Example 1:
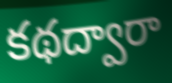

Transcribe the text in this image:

కథద్వారా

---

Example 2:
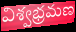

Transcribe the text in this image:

విశ్వభ్రమణ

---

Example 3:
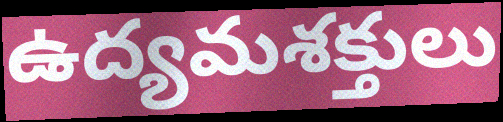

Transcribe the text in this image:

ఉద్యమశక్తులు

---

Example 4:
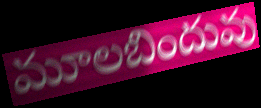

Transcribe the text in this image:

మూలబిందువు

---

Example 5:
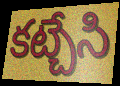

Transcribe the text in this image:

కట్చేసి